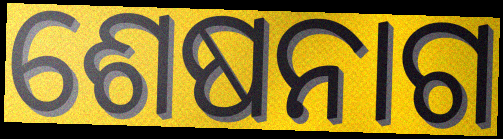
ଶେଷନାଗ